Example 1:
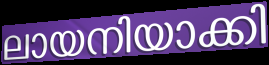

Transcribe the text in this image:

ലായനിയാക്കി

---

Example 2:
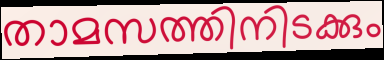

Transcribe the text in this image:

താമസത്തിനിടക്കും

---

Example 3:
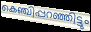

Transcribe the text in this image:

കെഞ്ചിപ്പറഞ്ഞിട്ടും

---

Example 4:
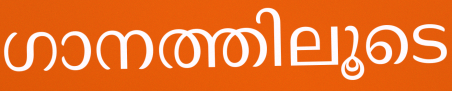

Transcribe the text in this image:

ഗാനത്തിലൂടെ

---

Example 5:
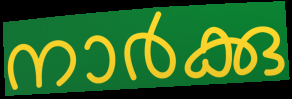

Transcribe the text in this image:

നാർക്കു